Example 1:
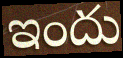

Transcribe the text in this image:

ఇందు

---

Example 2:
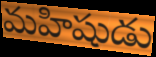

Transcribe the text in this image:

మహిషుడు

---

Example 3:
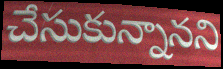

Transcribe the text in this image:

చేసుకున్నానని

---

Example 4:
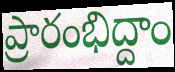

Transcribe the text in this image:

ప్రారంభిద్దాం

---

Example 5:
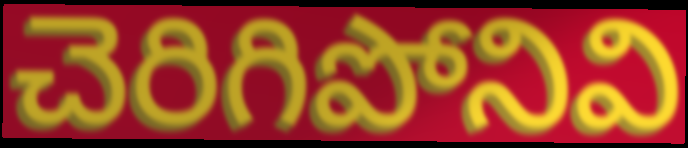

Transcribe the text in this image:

చెరిగిపోనివి